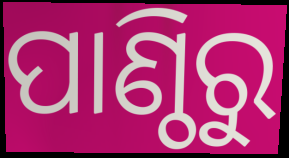
ପାଣ୍ଠିରୁ